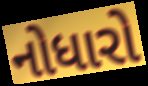
નોધારો